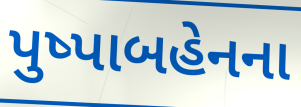
પુષ્પાબહેનના